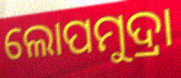
ଲୋପମୁଦ୍ରା